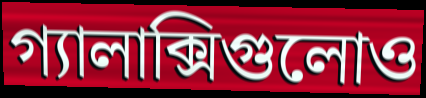
গ্যালাক্সিগুলোও